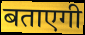
बताएगी